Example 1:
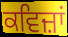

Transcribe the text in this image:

ਕਵਿਜ਼ਾਂ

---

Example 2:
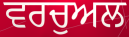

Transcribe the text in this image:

ਵਰਚੁਅਲ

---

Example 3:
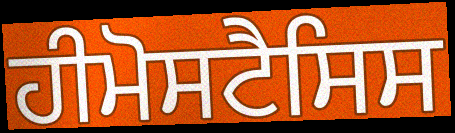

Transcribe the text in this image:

ਹੀਮੋਸਟੈਸਿਸ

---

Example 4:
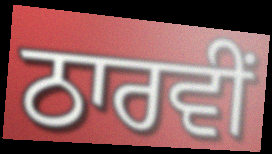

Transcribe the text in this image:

ਠਾਰਵੀਂ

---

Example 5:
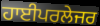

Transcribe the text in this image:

ਹਾਈਪਰਲੇਜਰ